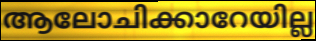
ആലോചിക്കാറേയില്ല